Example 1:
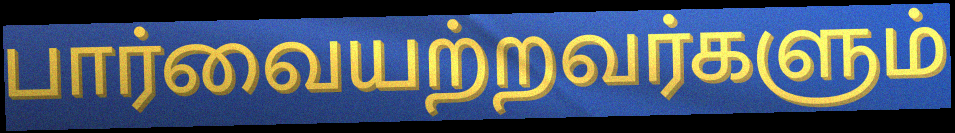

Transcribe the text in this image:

பார்வையற்றவர்களும்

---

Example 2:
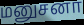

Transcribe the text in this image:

மனுசனா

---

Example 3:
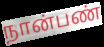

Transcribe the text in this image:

நான்பண்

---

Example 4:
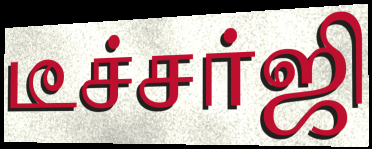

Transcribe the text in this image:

டீச்சர்ஜி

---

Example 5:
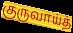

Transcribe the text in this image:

குருவாய்த்